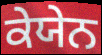
ਕੇਯੇਨ